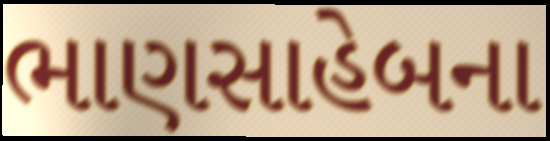
ભાણસાહેબના